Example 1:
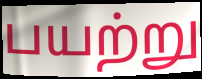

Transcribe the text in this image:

பயற்று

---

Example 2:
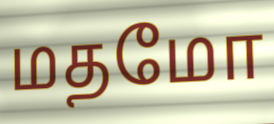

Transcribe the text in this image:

மதமோ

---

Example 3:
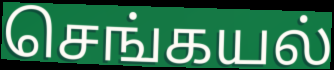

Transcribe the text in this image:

செங்கயல்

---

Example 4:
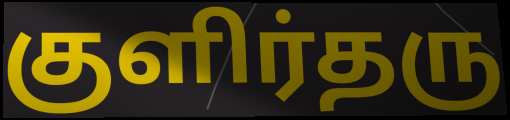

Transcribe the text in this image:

குளிர்தரு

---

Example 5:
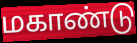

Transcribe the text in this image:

மகாண்டு